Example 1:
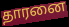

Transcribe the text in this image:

தாரனை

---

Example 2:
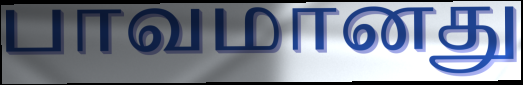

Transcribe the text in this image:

பாவமானது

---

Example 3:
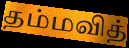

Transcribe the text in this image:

தம்மவித்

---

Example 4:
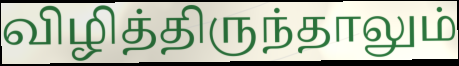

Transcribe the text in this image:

விழித்திருந்தாலும்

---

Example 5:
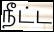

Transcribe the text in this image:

நீட்ட